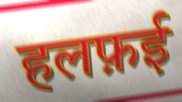
हलफ़ई